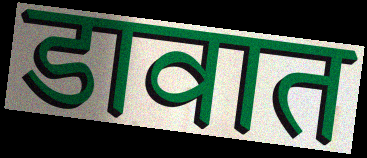
डावात